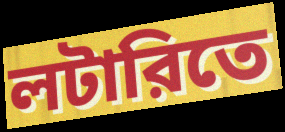
লটারিতে